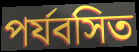
পৰ্যবসিত